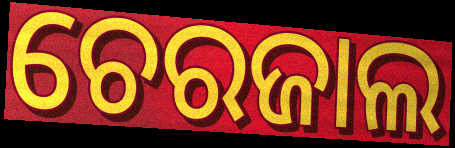
ଚେରଜାଲ